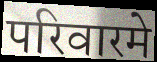
परिवारमे